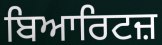
ਬਿਆਰਿਟਜ਼